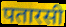
पतारसी